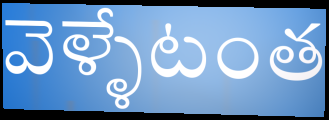
వెళ్ళేటంత